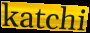
katchi